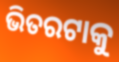
ଭିତରଟାକୁ